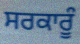
ਸਰਕਾਰੂੰ